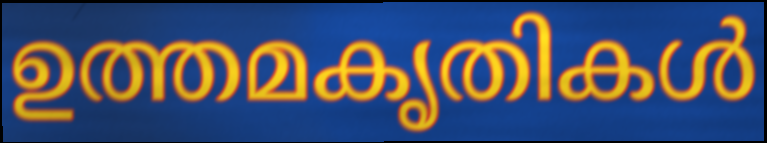
ഉത്തമകൃതികൾ